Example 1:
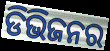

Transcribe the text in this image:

ଡିଭିଜନର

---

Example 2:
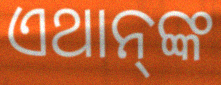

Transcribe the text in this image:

ଏଥାନ୍‍ଙ୍କ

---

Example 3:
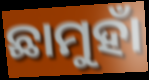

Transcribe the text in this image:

ଛାମୁହାଁ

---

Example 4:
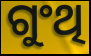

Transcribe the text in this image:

ଗୁଂଥି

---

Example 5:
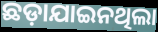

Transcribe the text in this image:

ଛଡ଼ାଯାଇନଥିଲା